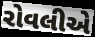
રોવલીએ